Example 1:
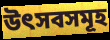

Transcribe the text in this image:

উৎসবসমূহ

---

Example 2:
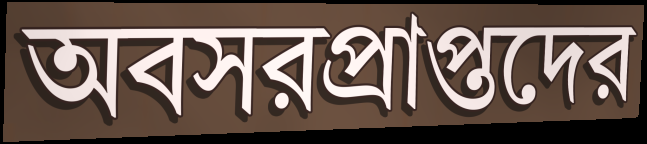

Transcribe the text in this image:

অবসরপ্রাপ্তদের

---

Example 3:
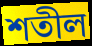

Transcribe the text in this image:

শতীল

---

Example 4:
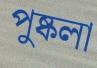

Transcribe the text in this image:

পুষ্কলা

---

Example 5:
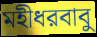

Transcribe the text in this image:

মহীধরবাবু